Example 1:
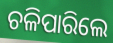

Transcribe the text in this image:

ଚଳିପାରିଲେ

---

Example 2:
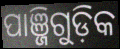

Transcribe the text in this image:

ପାଞ୍ଜିଗୁଡ଼ିକ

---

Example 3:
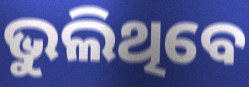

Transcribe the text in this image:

ଭୁଲିଥିବେ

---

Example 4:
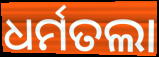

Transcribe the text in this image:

ଧର୍ମତଲା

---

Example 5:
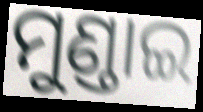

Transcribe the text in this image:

ମୁଣ୍ଡାଇ